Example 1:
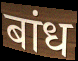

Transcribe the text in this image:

बांध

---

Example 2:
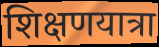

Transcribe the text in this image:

शिक्षणयात्रा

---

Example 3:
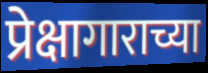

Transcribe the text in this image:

प्रेक्षागाराच्या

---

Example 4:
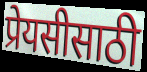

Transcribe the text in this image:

प्रेयसीसाठी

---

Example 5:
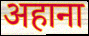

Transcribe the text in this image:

अहाना